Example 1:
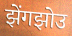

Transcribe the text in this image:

झेंगझोउ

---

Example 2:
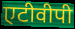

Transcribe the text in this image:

एटीवीपी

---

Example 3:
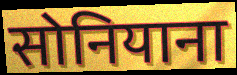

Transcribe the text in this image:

सोनियाना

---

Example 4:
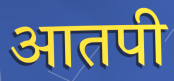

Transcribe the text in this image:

आतपी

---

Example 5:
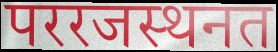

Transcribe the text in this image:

पररजस्थनत